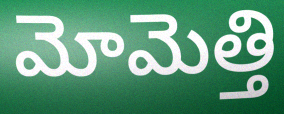
మోమెత్తి